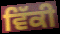
ਵਿੱਕੀ